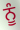
ਨੂੰ